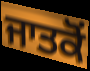
ਜਾਤਕੋਂ